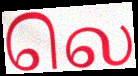
லெ